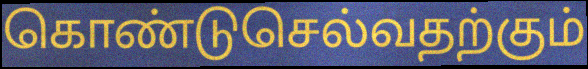
கொண்டுசெல்வதற்கும்